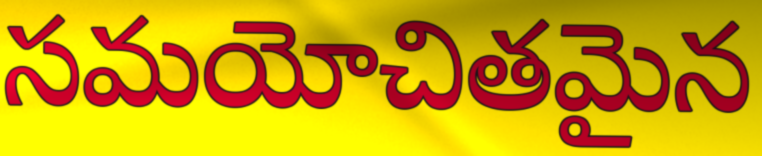
సమయోచితమైన